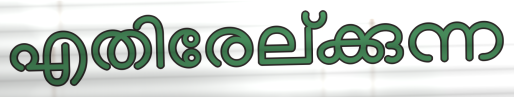
എതിരേല്ക്കുന്ന